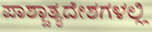
ಪಾಶ್ಚಾತ್ಯದೇಶಗಳಲ್ಲಿ